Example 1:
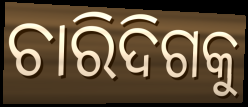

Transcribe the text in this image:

ଚାରିଦିଗକୁ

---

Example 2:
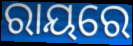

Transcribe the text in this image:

ରାୟରେ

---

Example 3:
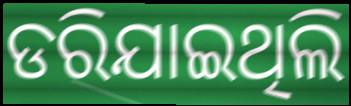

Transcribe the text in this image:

ଡରିଯାଇଥିଲି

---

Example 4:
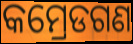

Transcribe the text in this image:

କମ୍ରେଡଗଣ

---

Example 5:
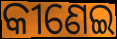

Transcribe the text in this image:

କୀଣେଇ